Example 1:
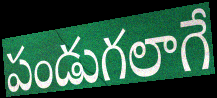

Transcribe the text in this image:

పండుగలాగే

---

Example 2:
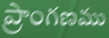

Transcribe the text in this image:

ప్రాంగణము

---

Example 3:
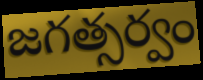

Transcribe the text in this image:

జగత్సర్వం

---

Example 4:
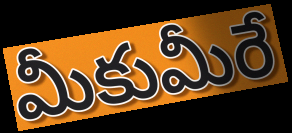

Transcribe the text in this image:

మీకుమీరే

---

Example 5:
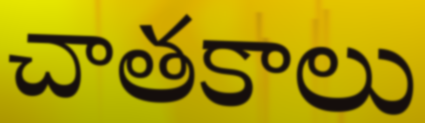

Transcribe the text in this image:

చాతకాలు